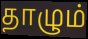
தாழும்